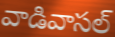
వాడివాసల్